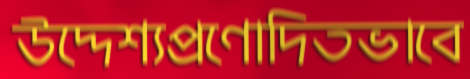
উদ্দেশ্যপ্রণোদিতভাবে